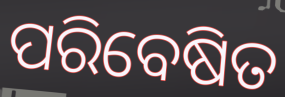
ପରିବେଷିତ